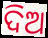
ଦିଅ